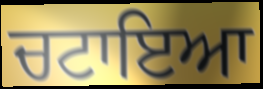
ਚਟਾਇਆ